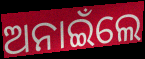
ଅନାଇଁଲେ